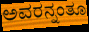
ಅವರನ್ನಂತೂ